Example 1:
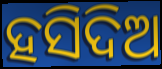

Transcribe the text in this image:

ହସିଦିଅ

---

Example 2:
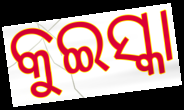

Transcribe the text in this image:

କୁଇସ୍କା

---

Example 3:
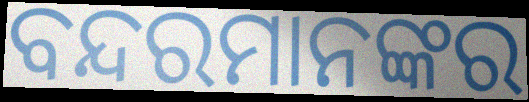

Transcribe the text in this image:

ବନ୍ଦରମାନଙ୍କର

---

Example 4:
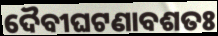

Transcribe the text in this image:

ଦୈବୀଘଟଣାବଶତଃ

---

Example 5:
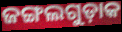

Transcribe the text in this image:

ଜଙ୍ଗଲଗୁଡ଼ାକ